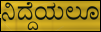
ನಿದ್ದೆಯಲೂ